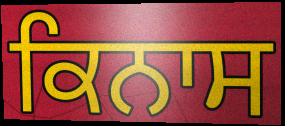
ਕਿਨਾਸ